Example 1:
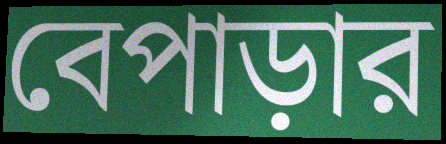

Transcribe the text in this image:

বেপাড়ার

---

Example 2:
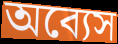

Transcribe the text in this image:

অব্যেস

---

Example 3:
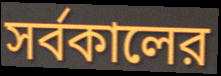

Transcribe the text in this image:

সর্বকালের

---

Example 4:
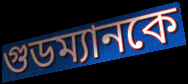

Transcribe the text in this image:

গুডম্যানকে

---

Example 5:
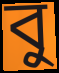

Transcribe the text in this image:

বু